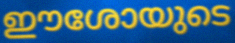
ഈശോയുടെ